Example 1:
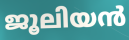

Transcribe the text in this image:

ജൂലിയൻ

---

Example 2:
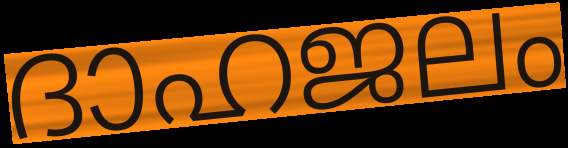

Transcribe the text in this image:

ദാഹജലം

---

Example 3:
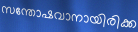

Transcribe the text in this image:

സന്തോഷവാനായിരിക്ക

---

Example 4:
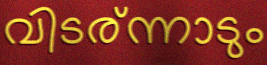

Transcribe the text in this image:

വിടര്ന്നാടും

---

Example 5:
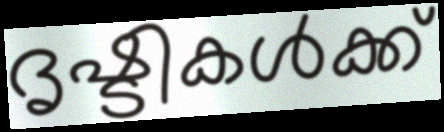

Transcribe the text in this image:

ദൃഷ്ടികൾക്ക്